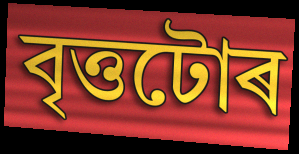
বৃত্তটোৰ